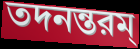
তদনন্তরম্